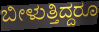
ಬೀಳುತ್ತಿದ್ದರೂ